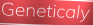
Geneticaly